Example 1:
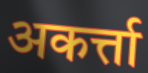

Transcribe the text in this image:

अकर्त्ता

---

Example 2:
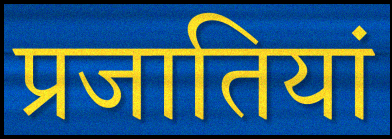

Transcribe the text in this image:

प्रजातियां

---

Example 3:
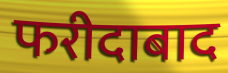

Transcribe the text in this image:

फरीदाबाद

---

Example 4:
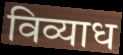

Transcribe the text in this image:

विव्याध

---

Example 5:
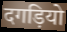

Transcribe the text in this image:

दगड़ियो